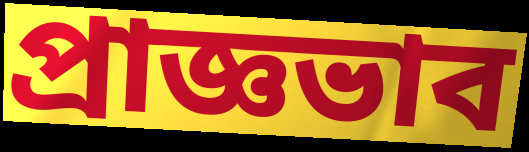
প্রাজ্ঞভাব